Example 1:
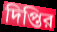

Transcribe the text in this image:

দিপ্তির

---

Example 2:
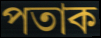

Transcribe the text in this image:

পতাক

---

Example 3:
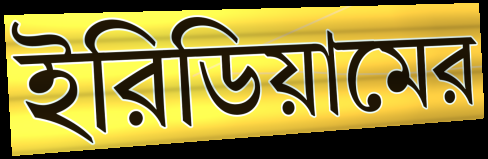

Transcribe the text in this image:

ইরিডিয়ামের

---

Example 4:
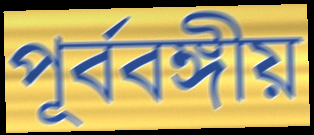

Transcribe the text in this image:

পূর্ববঙ্গীয়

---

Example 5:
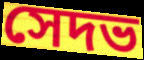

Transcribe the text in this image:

সেদভ